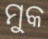
ମୁକ